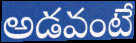
అడవంటే